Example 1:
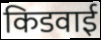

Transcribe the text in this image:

किडवाई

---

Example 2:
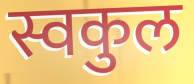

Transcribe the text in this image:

स्वकुल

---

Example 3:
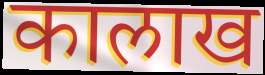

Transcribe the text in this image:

कालाख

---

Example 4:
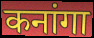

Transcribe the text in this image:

कनांगा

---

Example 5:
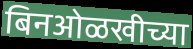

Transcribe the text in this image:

बिनओळखीच्या